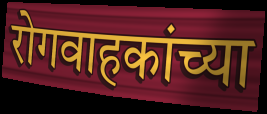
रोगवाहकांच्या